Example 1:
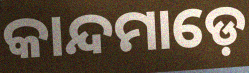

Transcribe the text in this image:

କାନ୍ଦମାଡ଼େ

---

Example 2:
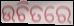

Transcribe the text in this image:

ଉଚିତରେ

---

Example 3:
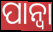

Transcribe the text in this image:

ପାନ୍ଵା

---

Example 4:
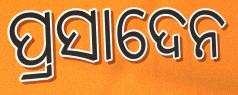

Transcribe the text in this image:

ପ୍ରସାଦେନ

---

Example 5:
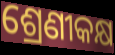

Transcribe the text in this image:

ଶ୍ରେଣୀକକ୍ଷ